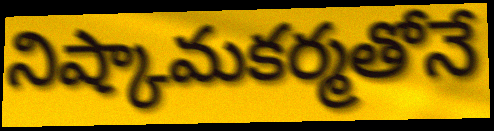
నిష్కామకర్మతోనే